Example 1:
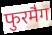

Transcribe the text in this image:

फुरमैग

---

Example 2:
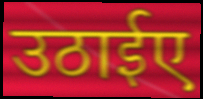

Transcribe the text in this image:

उठाईए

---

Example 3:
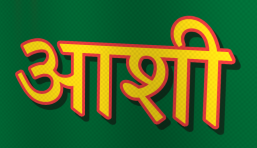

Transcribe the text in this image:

आशी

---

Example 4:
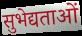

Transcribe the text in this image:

सुभेद्यताओं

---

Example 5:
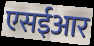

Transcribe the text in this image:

एसईआर